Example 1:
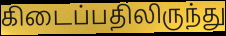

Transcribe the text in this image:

கிடைப்பதிலிருந்து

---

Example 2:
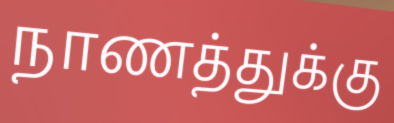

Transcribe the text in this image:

நாணத்துக்கு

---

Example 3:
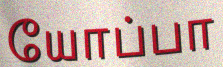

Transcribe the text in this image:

யோப்பா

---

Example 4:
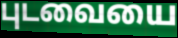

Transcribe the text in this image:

புடவையை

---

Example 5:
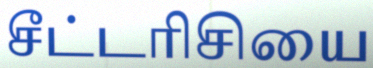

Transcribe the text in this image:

சீட்டரிசியை